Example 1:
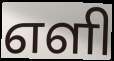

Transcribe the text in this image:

எளி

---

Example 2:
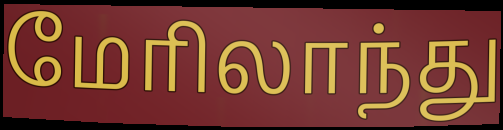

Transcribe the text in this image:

மேரிலாந்து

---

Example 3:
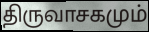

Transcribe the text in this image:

திருவாசகமும்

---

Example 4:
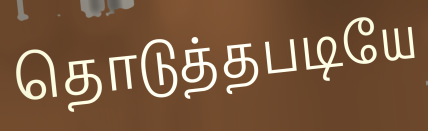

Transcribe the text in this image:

தொடுத்தபடியே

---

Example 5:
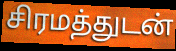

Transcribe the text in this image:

சிரமத்துடன்